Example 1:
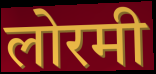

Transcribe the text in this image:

लोरमी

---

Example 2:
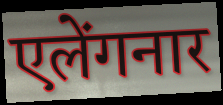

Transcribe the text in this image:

एलेंगनार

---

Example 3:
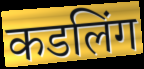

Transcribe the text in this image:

कडलिंग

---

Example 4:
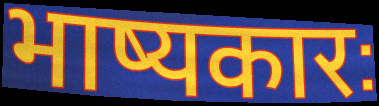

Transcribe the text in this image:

भाष्यकारः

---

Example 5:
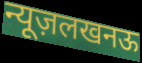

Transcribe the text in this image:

न्यूज़लखनऊ